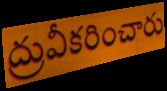
ద్రువీకరించారు